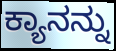
ಕ್ಯಾನನ್ನು